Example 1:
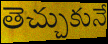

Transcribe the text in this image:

తెచ్చుకునే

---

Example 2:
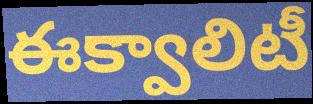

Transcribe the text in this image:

ఈక్వాలిటీ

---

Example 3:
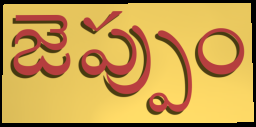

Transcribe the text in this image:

జెప్పుం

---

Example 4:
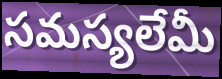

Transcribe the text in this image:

సమస్యలేమీ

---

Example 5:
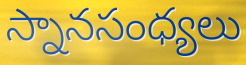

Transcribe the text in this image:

స్నానసంధ్యలు